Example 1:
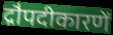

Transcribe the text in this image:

द्रौपदीकारणें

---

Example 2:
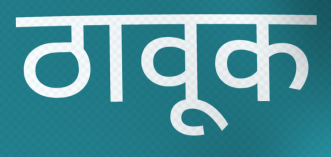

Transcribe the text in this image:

ठावूक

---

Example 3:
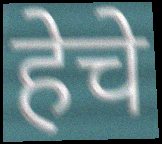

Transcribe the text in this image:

हेचे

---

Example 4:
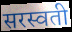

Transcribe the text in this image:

सरस्वती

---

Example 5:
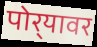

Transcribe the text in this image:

पोर्‍यावर